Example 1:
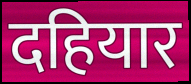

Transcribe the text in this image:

दहियार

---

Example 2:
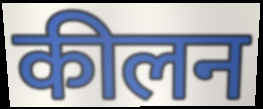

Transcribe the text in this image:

कीलन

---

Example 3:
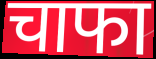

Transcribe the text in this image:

चाफा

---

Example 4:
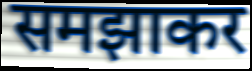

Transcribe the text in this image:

समझाकर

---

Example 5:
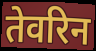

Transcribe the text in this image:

तेवरिन